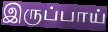
இருப்பாய்